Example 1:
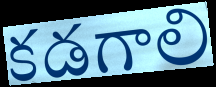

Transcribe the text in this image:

కడగాలి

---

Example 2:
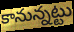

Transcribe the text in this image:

కానున్నట్టు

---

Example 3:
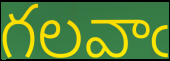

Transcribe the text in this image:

గలవాఁ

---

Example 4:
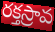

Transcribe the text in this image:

రక్తస్రావ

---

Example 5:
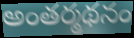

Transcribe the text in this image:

అంతర్మథనం